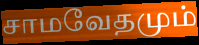
சாமவேதமும்